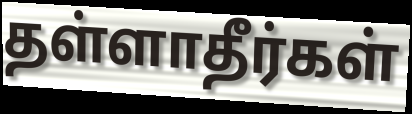
தள்ளாதீர்கள்